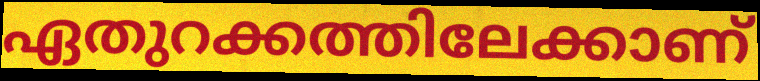
ഏതുറക്കത്തിലേക്കാണ്